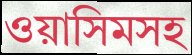
ওয়াসিমসহ